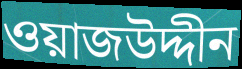
ওয়াজউদ্দীন